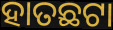
ହାତଛଟା